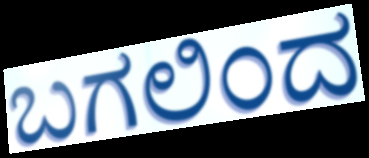
ಬಗಲಿಂದ